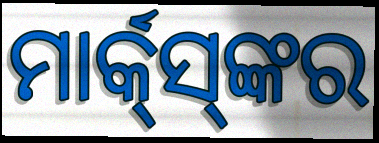
ମାର୍କ୍‍ସ୍‍ଙ୍କର